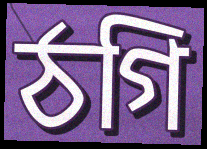
ঠগি